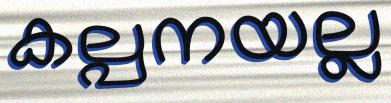
കല്പനയല്ല